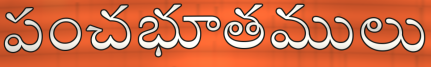
పంచభూతములు